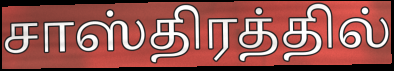
சாஸ்திரத்தில்